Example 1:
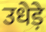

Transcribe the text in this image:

उधेड़े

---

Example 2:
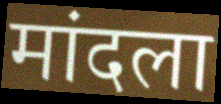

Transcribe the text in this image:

मांदला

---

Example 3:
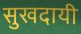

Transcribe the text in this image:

सुखदायी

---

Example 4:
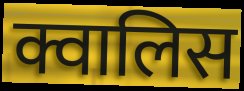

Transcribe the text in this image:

क्वालिस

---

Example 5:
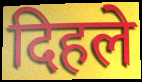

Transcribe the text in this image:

दिहले